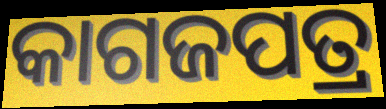
କାଗଜପତ୍ର